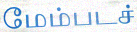
மேம்படச்